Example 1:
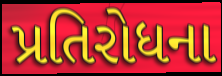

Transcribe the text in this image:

પ્રતિરોધના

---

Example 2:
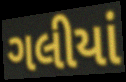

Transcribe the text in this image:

ગલીયાં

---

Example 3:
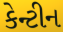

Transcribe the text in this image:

કેન્ટીન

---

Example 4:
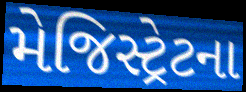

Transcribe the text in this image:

મેજિસ્ટ્રેટના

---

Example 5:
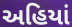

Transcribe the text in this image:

અહિયાં